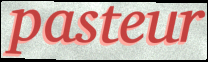
pasteur